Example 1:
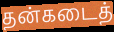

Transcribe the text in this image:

தன்கடைத்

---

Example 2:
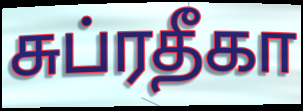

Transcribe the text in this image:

சுப்ரதீகா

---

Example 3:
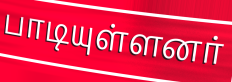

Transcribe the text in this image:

பாடியுள்ளனர்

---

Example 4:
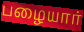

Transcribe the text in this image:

பழையார்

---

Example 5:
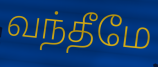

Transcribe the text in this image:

வந்தீமே